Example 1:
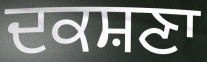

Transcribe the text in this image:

ਦਕਸ਼ਣਾ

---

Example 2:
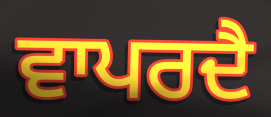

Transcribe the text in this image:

ਵਾਪਰਦੈ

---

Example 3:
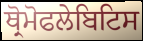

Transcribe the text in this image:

ਥ੍ਰੋਮੋਫਲੇਬਿਟਿਸ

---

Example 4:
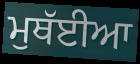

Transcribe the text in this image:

ਮੁਥੱਈਆ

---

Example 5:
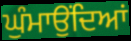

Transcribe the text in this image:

ਘੁੰਮਾਉਂਦਿਆਂ